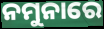
ନମୁନାରେ